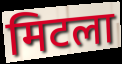
मिटला